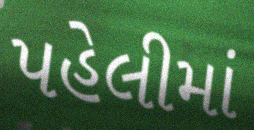
પહેલીમાં